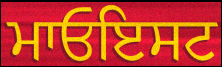
ਮਾਓਇਸਟ